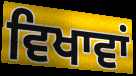
ਵਿਖਾਵਾਂ